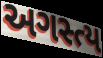
અગસ્ત્ય